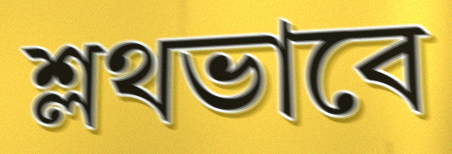
শ্লথভাবে